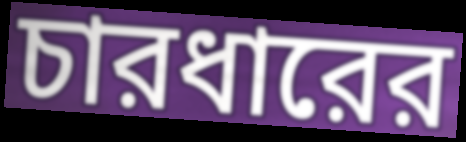
চারধারের